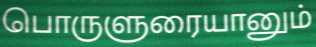
பொருளுரையானும்